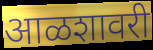
आळशावरी